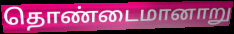
தொண்டைமானாறு